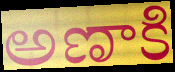
అణాకి